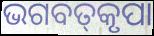
ଭଗବତ୍‌କୃପା